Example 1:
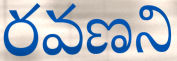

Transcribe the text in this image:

రవణని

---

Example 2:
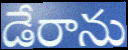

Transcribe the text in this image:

డేరాను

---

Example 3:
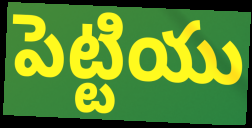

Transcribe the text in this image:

పెట్టియు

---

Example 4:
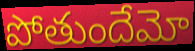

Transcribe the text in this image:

పోతుందేమో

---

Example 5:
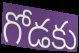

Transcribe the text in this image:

గోడకు